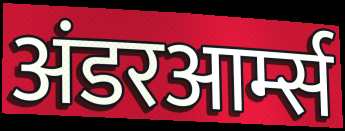
अंडरआर्म्‍स